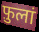
फ़ुलां